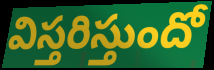
విస్తరిస్తుందో